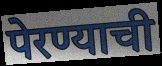
पेरण्याची